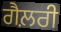
ਗੈਲ਼ਰੀ